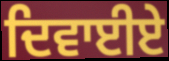
ਦਿਵਾਈਏ